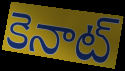
కెనాట్